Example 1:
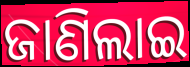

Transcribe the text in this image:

ଜାଣିଲାଇ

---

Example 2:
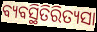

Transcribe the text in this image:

ବ୍ୟବସ୍ଥିତିରିତ୍ୟସା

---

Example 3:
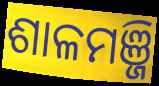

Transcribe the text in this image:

ଶାଳମଞ୍ଜି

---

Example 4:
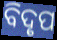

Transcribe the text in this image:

ବିଦୃପ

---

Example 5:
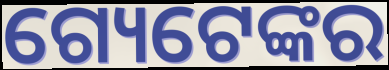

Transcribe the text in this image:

ଗ୍ୟେଟେଙ୍କର